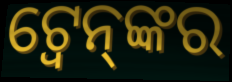
ଟ୍ୱେନ୍‌ଙ୍କର